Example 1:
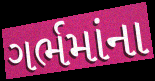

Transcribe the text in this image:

ગર્ભમાંના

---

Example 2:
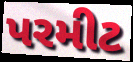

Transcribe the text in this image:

પરમીટ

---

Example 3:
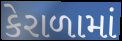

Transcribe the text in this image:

કેરાળામાં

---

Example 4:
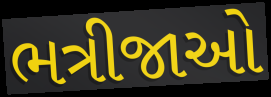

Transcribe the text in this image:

ભત્રીજાઓ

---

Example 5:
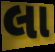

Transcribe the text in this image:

લા